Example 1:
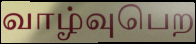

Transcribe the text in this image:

வாழ்வுபெற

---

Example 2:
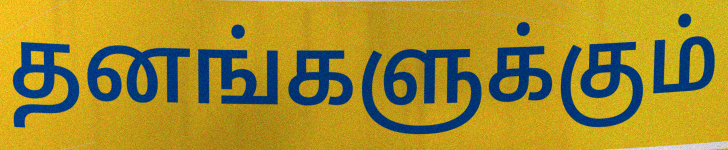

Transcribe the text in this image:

தனங்களுக்கும்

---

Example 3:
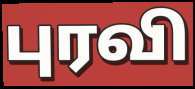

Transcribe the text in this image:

புரவி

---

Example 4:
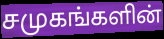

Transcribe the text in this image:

சமுகங்களின்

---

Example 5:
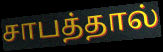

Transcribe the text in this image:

சாபத்தால்